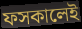
ফসকালেই